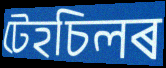
টেহচিলৰ